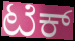
ಟೆಕ್